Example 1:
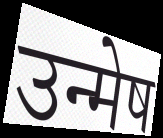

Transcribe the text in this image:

उन्मेष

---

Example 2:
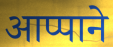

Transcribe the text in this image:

आप्पाने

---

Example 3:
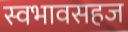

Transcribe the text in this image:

स्वभावसहज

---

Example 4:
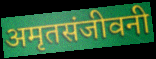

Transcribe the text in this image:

अमृतसंजीवनी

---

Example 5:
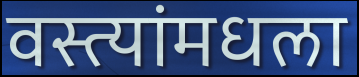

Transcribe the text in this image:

वस्त्यांमधला